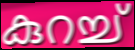
കുറച്ച്